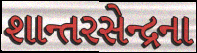
શાન્તરસેન્દ્રના